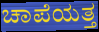
ಚಾಪೆಯತ್ತ